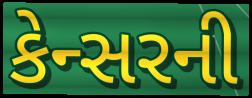
કેન્સરની